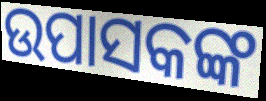
ଉପାସକଙ୍କ